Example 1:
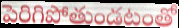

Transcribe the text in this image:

పెరిగిపోతుండటంతో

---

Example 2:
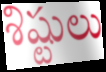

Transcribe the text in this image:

శిష్టులు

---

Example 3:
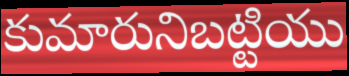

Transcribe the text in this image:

కుమారునిబట్టియు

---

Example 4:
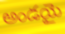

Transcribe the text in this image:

అండయై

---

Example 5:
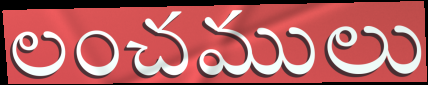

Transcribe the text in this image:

లంచములు